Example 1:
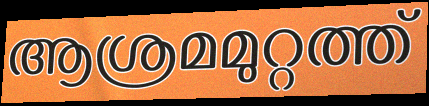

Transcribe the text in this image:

ആശ്രമമുറ്റത്ത്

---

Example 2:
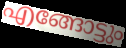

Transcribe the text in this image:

എങ്ങോട്ടും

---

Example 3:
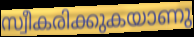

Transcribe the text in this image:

സ്വീകരിക്കുകയാണു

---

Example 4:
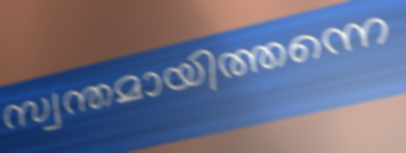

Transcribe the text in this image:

സ്വന്തമായിത്തന്നെ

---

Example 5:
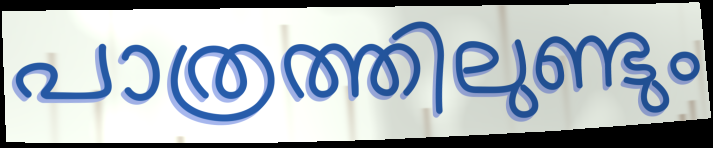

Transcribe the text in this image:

പാത്രത്തിലുണ്ടും